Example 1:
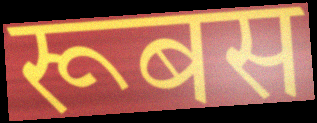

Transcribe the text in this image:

रूबस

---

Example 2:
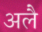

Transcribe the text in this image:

अलै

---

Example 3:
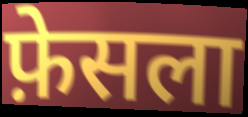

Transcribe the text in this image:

फ़ेसला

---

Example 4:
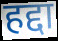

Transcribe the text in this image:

हद्दा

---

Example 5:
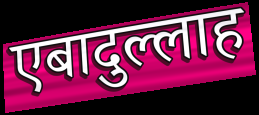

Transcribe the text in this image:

एबादुल्लाह